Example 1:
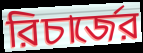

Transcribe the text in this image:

রিচার্জের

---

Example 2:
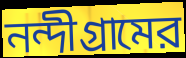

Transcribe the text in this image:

নন্দীগ্রামের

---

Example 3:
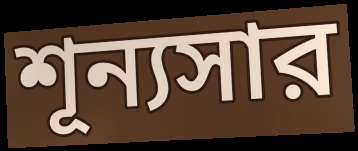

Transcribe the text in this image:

শূন্যসার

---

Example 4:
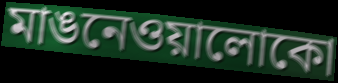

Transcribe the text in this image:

মাঙনেওয়ালোকো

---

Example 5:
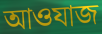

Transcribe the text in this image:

আওযাজ